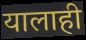
यालाही